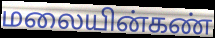
மலையின்கண்